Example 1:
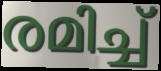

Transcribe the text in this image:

രമിച്ച്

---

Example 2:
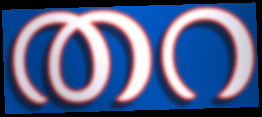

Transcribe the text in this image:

തറ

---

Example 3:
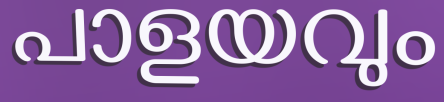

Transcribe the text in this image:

പാളയവും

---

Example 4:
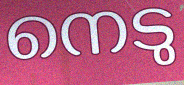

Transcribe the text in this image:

നെടു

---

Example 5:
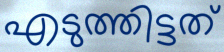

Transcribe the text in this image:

എടുത്തിട്ടത്